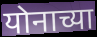
योनाच्या